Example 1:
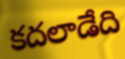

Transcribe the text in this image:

కదలాడేది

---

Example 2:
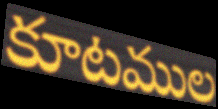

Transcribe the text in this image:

కూటముల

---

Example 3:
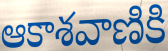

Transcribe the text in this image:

ఆకాశవాణికి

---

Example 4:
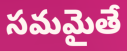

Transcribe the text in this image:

సమమైతే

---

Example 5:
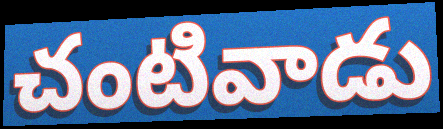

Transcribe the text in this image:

చంటివాడు